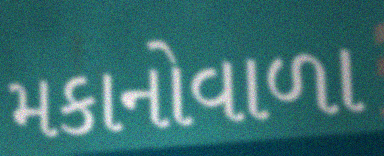
મકાનોવાળા